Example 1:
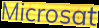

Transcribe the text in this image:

Microsat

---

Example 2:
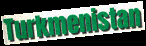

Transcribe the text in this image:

Turkmenistan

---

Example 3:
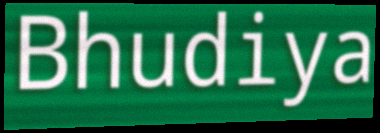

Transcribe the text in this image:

Bhudiya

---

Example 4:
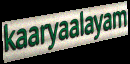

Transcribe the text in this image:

kaaryaalayam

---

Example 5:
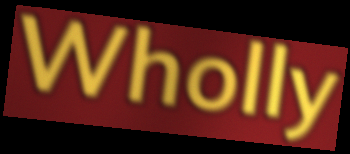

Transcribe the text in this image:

Wholly